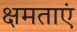
क्षमताएं